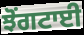
ਝੋਂਗਟਾਈ